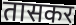
तासकर